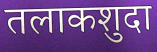
तलाकशुदा